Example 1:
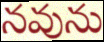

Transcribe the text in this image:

నవును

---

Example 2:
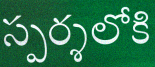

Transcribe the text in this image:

స్పర్శలోకి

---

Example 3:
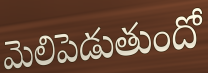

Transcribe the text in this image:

మెలిపెడుతుందో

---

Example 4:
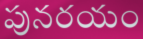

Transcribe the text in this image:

పునరయం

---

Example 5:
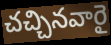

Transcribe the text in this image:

చచ్చినవారై